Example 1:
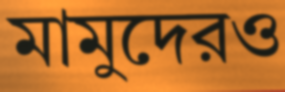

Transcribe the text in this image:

মামুদেরও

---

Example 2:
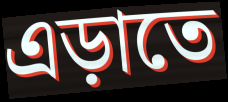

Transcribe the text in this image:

এড়াতে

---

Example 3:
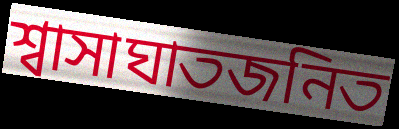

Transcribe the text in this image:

শ্বাসাঘাতজনিত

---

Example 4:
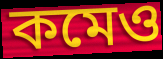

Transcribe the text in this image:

কমেও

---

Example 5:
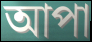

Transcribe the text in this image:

আপা